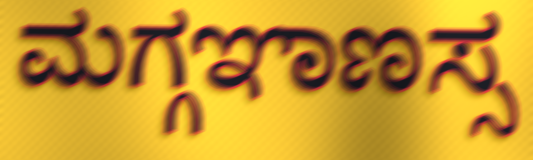
ಮಗ್ಗಞಾಣಸ್ಸ